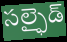
సల్ఫైడ్